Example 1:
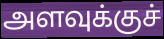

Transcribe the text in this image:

அளவுக்குச்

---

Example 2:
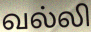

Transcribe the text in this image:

வல்லி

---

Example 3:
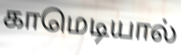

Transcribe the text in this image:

காமெடியால்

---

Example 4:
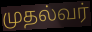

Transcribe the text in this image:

முதல்வர்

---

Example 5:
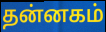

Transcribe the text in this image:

தன்னகம்